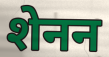
शेनन